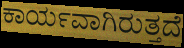
ಕಾರ್ಯವಾಗಿರುತ್ತದೆ